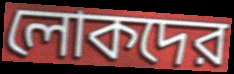
লোকদের